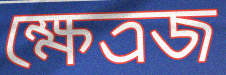
ক্ষেত্রজ